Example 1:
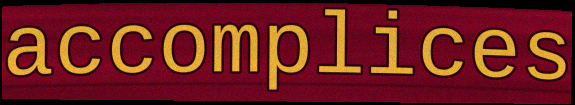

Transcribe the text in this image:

accomplices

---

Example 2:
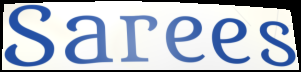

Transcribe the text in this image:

Sarees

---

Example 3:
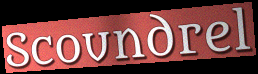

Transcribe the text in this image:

Scoundrel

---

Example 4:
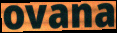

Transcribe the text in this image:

ovana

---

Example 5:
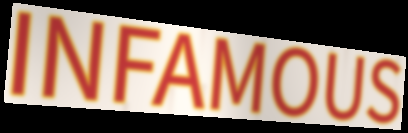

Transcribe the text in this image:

INFAMOUS